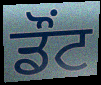
ਡੌਂਟ